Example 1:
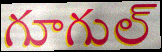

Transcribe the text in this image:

గూగుల్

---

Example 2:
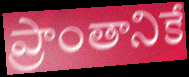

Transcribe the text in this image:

ప్రాంతానికే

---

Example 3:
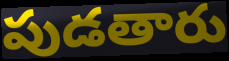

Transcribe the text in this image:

పుడతారు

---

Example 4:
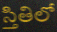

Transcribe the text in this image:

స్తితిలో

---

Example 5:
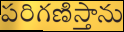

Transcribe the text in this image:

పరిగణిస్తాను